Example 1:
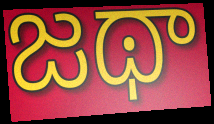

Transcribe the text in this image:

జథా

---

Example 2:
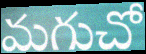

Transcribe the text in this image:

మగుచో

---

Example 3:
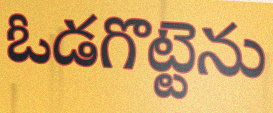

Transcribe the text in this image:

ఓడగొట్టెను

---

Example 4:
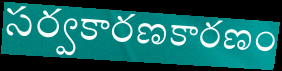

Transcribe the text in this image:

సర్వకారణకారణం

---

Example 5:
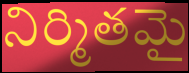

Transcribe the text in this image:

నిర్మితమై